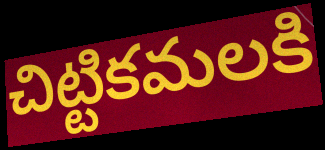
చిట్టికమలకి